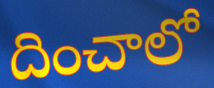
దించాలో